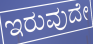
ಇರುವುದೇ